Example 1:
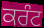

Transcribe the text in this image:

ਕਰੰਟ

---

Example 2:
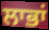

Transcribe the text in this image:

ਲਾਭਾਂ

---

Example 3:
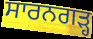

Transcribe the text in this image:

ਸਾਰਨਗੜ੍ਹ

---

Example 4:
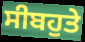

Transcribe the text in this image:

ਸੀਬਹੁਤੇ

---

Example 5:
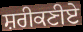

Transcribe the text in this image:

ਸ਼ਰੀਕਣੀਏ